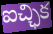
ఐచ్ఛిక